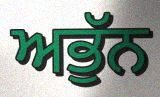
ਅਭੁੱਨ